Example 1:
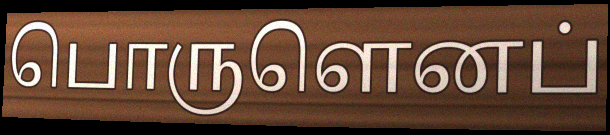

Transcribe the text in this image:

பொருளெனப்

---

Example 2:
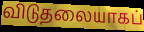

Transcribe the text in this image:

விடுதலையாகப்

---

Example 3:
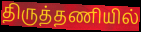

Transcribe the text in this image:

திருத்தணியில்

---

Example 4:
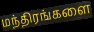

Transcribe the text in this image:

மந்திரங்களை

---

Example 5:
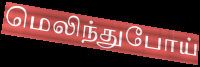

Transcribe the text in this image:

மெலிந்துபோய்